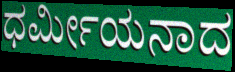
ಧರ್ಮೀಯನಾದ